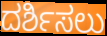
ದರ್ಶಿಸಲು